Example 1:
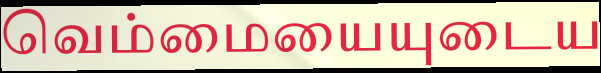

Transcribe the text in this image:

வெம்மையையுடைய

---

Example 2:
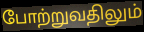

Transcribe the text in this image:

போற்றுவதிலும்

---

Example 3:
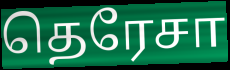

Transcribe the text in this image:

தெரேசா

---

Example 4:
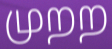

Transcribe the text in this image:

முறற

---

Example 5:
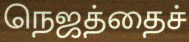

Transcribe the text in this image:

நெஜத்தைச்